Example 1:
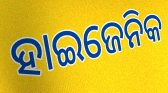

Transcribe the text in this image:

ହାଇଜେନିକ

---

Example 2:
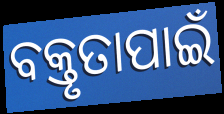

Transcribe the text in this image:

ବକ୍ତୃତାପାଇଁ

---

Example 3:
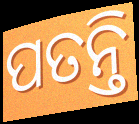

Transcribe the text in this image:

ପତନ୍ତି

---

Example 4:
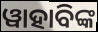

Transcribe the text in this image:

ୱାହାବିଙ୍କ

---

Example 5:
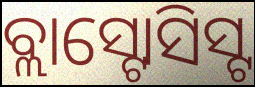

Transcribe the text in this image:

ବ୍ଲାସ୍ଟୋସିସ୍ଟ